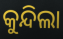
କୁନ୍ଦିଲା